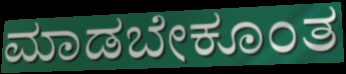
ಮಾಡಬೇಕೂಂತ